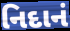
નિદાનં